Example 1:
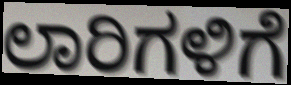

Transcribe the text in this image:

ಲಾರಿಗಳಿಗೆ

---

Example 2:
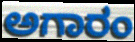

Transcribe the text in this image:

ಅಗಾರಂ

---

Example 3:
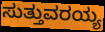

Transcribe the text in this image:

ಸುತ್ತುವರಯ್ಯ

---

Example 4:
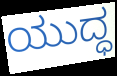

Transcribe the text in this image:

ಯುದ್ಧ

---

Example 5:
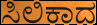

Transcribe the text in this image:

ಸಿಲಿಕಾದ